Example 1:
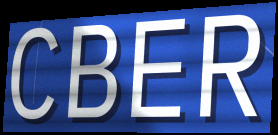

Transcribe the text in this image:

CBER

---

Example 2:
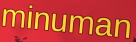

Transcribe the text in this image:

minuman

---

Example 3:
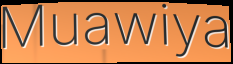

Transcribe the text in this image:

Muawiya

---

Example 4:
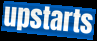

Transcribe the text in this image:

upstarts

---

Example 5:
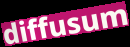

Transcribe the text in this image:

diffusum